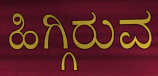
ಹಿಗ್ಗಿರುವ